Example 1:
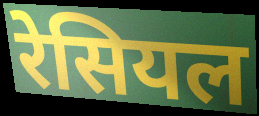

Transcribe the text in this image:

रेसियल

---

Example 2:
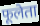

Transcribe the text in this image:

फूलेता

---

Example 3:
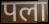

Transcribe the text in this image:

पला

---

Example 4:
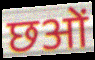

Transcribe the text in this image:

छओं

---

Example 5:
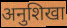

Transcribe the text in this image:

अनुशिखा